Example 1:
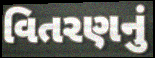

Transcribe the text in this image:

વિતરણનું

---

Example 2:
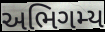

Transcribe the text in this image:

અભિગમ્ય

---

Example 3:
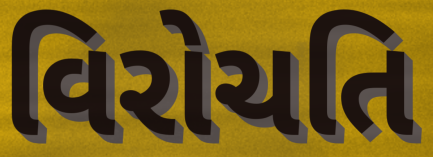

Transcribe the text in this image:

વિરોચતિ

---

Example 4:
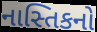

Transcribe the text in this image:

નાસ્તિકનો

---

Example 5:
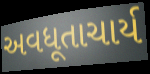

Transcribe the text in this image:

અવધૂતાચાર્ય